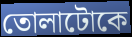
তোলাটোকে